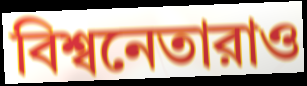
বিশ্বনেতারাও